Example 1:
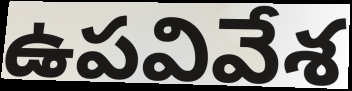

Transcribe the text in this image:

ఉపవివేశ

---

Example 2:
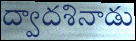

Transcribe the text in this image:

ద్వాదశినాడు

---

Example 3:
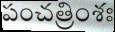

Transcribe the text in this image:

పంచత్రింశః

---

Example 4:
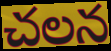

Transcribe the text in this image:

చలన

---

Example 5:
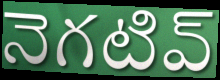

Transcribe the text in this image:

నెగటివ్